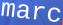
marc